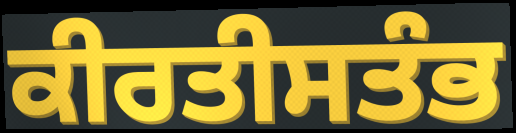
ਕੀਰਤੀਸਤੰਭ